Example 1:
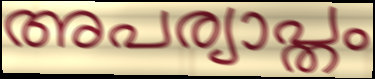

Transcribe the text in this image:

അപര്യാപ്തം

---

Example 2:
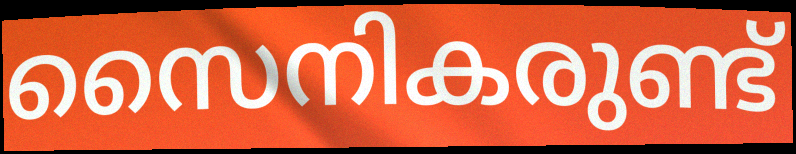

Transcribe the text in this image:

സൈനികരുണ്ട്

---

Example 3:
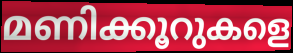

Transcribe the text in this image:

മണിക്കൂറുകളെ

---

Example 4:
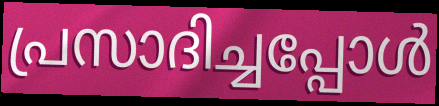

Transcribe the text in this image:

പ്രസാദിച്ചപ്പോൾ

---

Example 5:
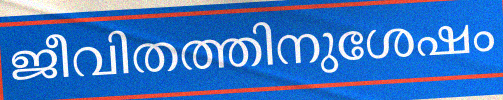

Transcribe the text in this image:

ജീവിതത്തിനുശേഷം